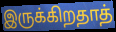
இருக்கிறதாத்